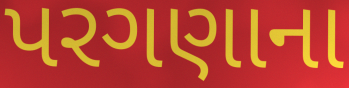
પરગણાના